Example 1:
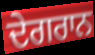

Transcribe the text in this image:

ਦੇਗਰਾਨ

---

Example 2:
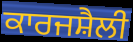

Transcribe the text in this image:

ਕਾਰਜਸ਼ੈਲੀ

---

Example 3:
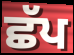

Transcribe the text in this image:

ਛੱਪ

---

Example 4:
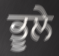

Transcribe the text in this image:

ਭੂਲੇ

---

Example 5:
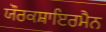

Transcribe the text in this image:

ਯੌਰਕਸ਼ਾਇਰਮੈਨ